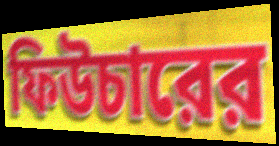
ফিউচারের